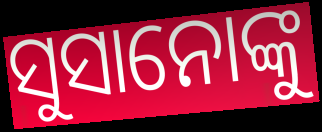
ସୁସାନୋଙ୍କୁ